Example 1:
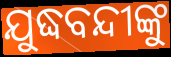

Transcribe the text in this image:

ଯୁଦ୍ଧବନ୍ଦୀଙ୍କୁ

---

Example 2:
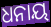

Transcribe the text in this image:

ଧନାୟ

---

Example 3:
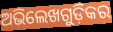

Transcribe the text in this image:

ଅଭିଲେଖଗୁଡ଼ିକର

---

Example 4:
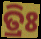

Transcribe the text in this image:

ତ୍ରିଃ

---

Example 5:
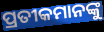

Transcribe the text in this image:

ପ୍ରତୀକମାନଙ୍କୁ